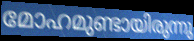
മോഹമുണ്ടായിരുന്നു